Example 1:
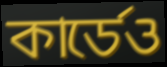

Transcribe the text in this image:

কার্ডেও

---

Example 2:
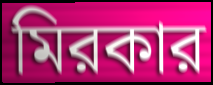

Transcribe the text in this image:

মিরকার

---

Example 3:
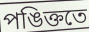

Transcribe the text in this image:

পঙিক্ততে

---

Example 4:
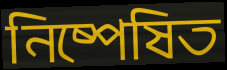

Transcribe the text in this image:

নিষ্পেষিত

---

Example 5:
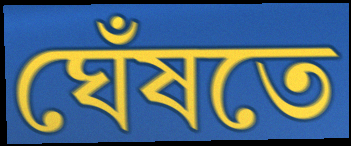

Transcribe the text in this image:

ঘেঁষতে